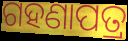
ଗହଣାପତ୍ର